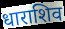
धाराशिव